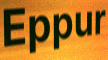
Eppur